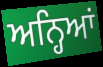
ਅਨ੍ਹਿਆਂ